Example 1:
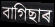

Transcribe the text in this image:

বাগিছাৰ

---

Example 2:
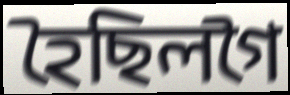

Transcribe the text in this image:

হৈছিলগৈ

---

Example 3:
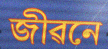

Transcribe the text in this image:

জীৱনে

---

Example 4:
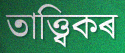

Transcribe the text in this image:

তাত্ত্বিকৰ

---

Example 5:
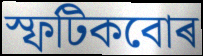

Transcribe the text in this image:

স্ফটিকবোৰ